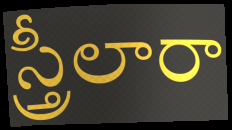
స్త్రీలారా